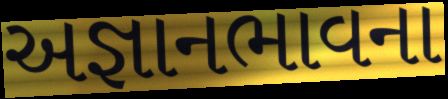
અજ્ઞાનભાવના